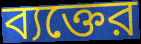
ব্যক্তের